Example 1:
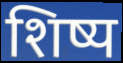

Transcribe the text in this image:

शिष्य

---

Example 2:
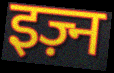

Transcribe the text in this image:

इज़्न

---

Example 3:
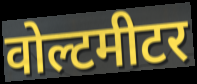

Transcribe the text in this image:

वोल्टमीटर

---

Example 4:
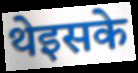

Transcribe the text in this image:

थेइसके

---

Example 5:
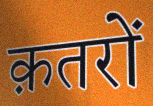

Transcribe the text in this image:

क़तरों